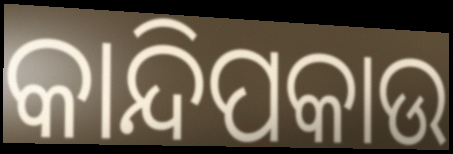
କାନ୍ଦିପକାଉ